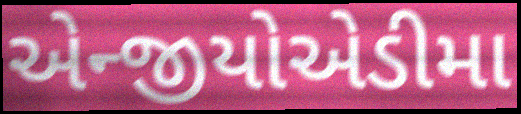
એન્જીયોએડીમા